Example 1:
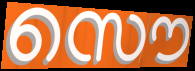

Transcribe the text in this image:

സൌ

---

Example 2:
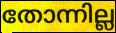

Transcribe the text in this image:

തോന്നില്ല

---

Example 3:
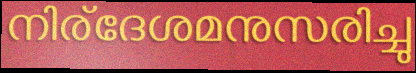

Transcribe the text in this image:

നിര്ദേശമനുസരിച്ചു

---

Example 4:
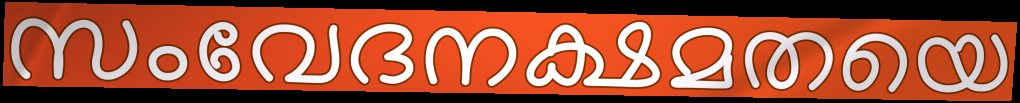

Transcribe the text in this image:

സംവേദനക്ഷമതയെ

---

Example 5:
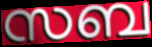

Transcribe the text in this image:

സബ